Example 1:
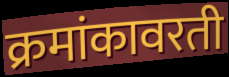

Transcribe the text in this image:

क्रमांकावरती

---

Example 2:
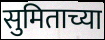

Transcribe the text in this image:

सुमिताच्या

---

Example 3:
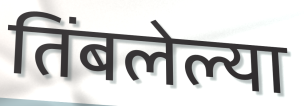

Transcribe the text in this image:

तिंबलेल्या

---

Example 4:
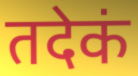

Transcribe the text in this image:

तदेकं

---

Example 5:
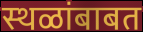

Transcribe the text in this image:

स्थळांबाबत